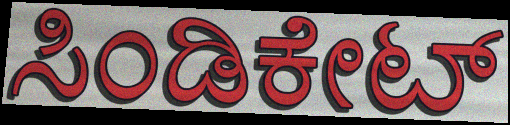
ಸಿಂಡಿಕೇಟ್